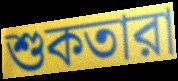
শুকতারা